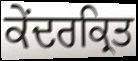
ਕੇਂਦਰਕ੍ਰਿਤ